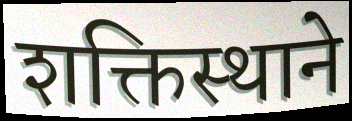
शक्तिस्थाने